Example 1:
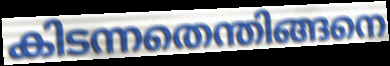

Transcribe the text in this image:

കിടന്നതെന്തിങ്ങനെ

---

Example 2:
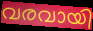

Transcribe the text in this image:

വരവായി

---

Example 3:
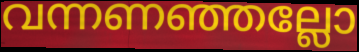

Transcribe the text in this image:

വന്നണഞ്ഞല്ലോ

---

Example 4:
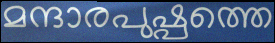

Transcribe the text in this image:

മന്ദാരപുഷ്പത്തെ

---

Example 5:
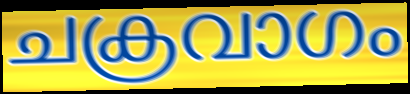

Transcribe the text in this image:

ചക്രവാഗം